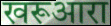
खरूआरा